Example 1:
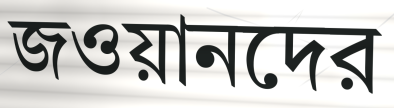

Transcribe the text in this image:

জওয়ানদের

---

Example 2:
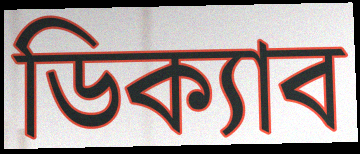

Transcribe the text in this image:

ডিক্যাব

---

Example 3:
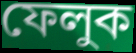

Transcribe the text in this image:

ফেলুক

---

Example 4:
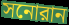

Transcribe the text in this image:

সনোরান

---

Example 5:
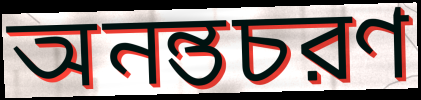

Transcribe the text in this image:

অনন্তচরণ